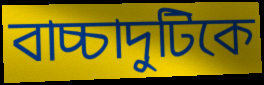
বাচ্চাদুটিকে